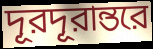
দূরদূরান্তরে